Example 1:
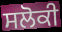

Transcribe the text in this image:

ਸਲੋਕੀ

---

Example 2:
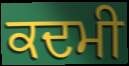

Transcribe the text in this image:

ਕਦਮੀ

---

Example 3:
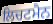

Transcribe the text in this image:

ਲਿਚਟਮੈਨ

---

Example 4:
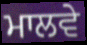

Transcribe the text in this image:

ਮਾਲਵੇ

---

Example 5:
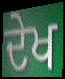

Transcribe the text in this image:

ਦੇਖ